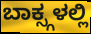
ಬಾಕ್ಸ್ಗಳಲ್ಲಿ